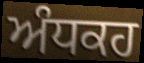
ਅੰਧਕਹ